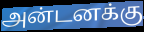
அன்டனக்கு